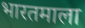
भारतमाला